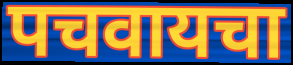
पचवायचा